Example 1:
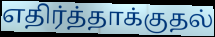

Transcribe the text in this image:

எதிர்த்தாக்குதல்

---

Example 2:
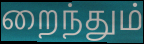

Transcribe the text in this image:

றைந்தும்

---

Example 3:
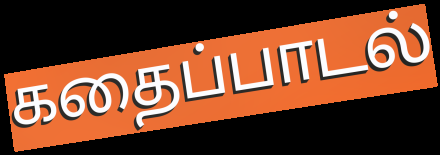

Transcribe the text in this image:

கதைப்பாடல்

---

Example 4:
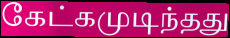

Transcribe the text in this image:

கேட்கமுடிந்தது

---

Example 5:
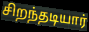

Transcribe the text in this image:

சிறந்தடியார்